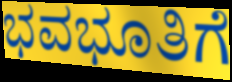
ಭವಭೂತಿಗೆ